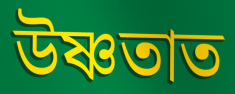
উষ্ণতাত